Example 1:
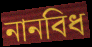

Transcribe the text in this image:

নানবিধ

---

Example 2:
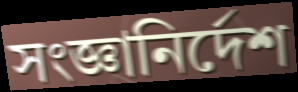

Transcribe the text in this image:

সংজ্ঞানির্দেশ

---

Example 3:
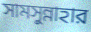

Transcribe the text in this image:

সামসুন্নাহার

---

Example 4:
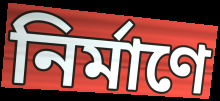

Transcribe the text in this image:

নির্মাণে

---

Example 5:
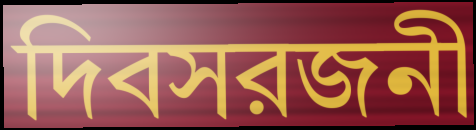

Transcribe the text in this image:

দিবসরজনী